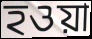
হওয়া